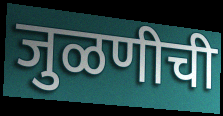
जुळणीची